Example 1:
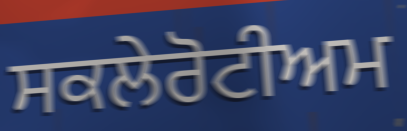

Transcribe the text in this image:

ਸਕਲੇਰੋਟੀਅਮ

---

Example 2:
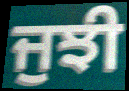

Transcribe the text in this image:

ਜੁਝੀ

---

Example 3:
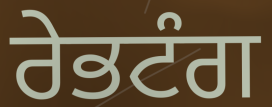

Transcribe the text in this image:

ਰੇਭਟੰਗ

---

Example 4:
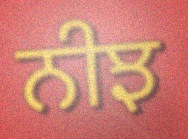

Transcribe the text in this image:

ਨੀਝ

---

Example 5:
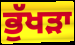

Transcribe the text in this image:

ਭੁੱਖੜਾ